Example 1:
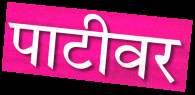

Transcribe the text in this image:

पाटीवर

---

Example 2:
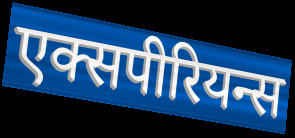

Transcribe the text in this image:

एक्सपीरियन्स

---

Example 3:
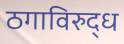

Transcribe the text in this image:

ठगाविरुद्ध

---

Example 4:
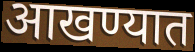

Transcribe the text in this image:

आखण्यात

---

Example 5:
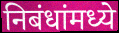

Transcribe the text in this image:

निबंधांमध्ये